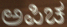
ಅಪಿಚ